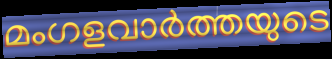
മംഗളവാർത്തയുടെ